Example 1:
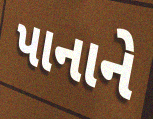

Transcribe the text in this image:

પાનાને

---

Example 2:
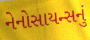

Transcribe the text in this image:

નેનોસાયન્સનું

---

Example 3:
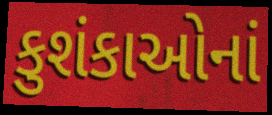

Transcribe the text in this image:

કુશંકાઓનાં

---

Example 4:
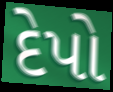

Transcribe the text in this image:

દેપો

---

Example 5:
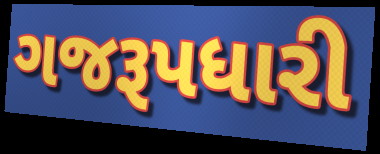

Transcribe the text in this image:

ગજરૂપધારી